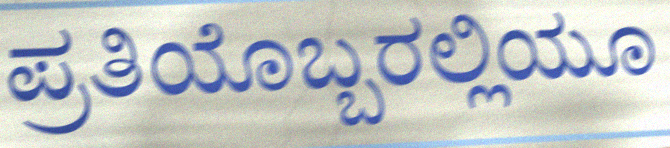
ಪ್ರತಿಯೊಬ್ಬರಲ್ಲಿಯೂ